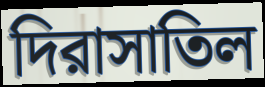
দিরাসাতিল